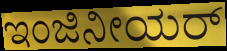
ಇಂಜಿನೀಯರ್